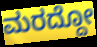
ಮರದ್ದೋ